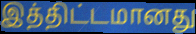
இத்திட்டமானது